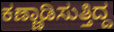
ಕಣ್ಣಾಡಿಸುತ್ತಿದ್ದ